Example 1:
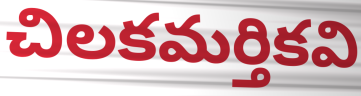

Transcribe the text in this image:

చిలకమర్తికవి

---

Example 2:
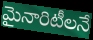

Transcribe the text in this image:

మైనారిటీలనే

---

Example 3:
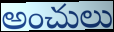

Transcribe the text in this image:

అంచులు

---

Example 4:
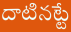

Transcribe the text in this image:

దాటినట్టే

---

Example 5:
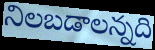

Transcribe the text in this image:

నిలబడాలన్నది